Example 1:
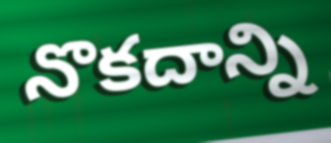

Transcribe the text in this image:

నొకదాన్ని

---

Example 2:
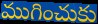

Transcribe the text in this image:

ముగించుకు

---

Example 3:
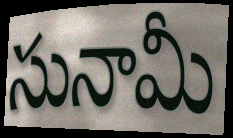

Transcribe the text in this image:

సునామీ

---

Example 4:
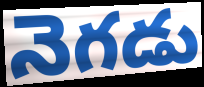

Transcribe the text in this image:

నెగడు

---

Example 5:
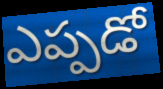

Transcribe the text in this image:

ఎప్పడో